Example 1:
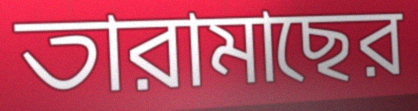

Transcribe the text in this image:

তারামাছের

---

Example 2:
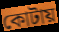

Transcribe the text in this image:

কোটায়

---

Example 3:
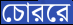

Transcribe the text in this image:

চোররে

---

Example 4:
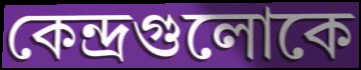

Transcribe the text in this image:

কেন্দ্রগুলোকে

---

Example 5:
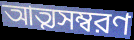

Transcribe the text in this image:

আত্মসম্বরণ